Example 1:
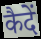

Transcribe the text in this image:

कैदें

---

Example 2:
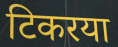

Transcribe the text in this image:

टिकरया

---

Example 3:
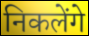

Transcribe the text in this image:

निकलेंगे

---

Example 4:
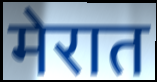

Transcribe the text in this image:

मेरात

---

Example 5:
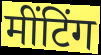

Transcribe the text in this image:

मींटिंग